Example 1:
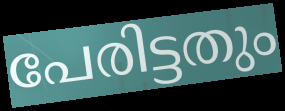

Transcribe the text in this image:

പേരിട്ടതും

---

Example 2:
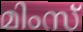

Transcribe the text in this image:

മിംസ്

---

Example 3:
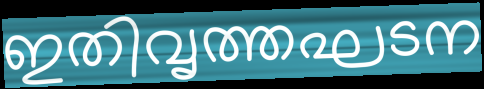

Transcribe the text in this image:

ഇതിവൃത്തഘടന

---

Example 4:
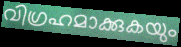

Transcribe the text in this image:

വിഗ്രഹമാക്കുകയും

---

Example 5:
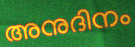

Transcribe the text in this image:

അനുദിനം